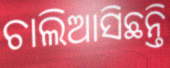
ଚାଲିଆସିଛନ୍ତି